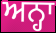
ਅਨ੍ਹਾ